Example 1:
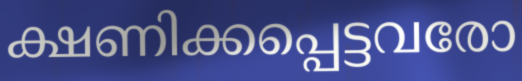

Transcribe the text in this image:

ക്ഷണിക്കപ്പെട്ടവരോ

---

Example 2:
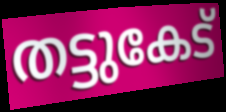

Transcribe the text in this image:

തട്ടുകേട്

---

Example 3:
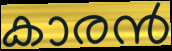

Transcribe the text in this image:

കാരൻ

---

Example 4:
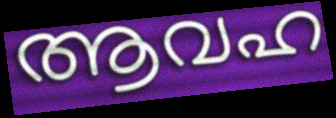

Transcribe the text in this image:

ആവഹ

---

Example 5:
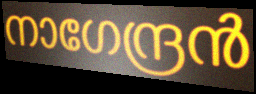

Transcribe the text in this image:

നാഗേന്ദ്രൻ